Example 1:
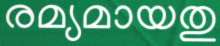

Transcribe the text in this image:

രമ്യമായതു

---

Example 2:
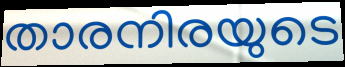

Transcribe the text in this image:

താരനിരയുടെ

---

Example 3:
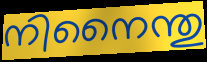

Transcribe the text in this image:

നിനൈന്തു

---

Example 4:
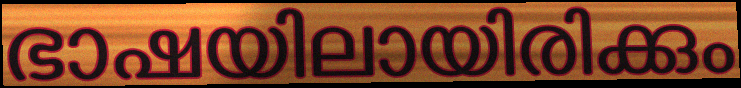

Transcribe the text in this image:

ഭാഷയിലായിരിക്കും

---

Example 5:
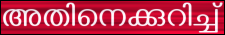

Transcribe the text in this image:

അതിനെക്കുറിച്ച്